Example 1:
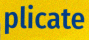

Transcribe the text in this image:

plicate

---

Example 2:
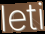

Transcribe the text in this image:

leti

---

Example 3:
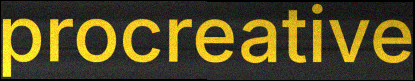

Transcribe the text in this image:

procreative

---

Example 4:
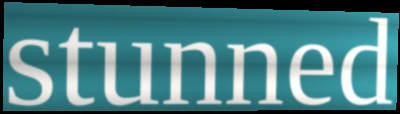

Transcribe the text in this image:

stunned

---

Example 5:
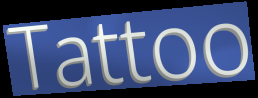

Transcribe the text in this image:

Tattoo